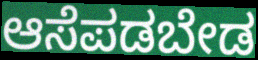
ಆಸೆಪಡಬೇಡ